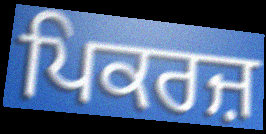
ਪਿਕਰਜ਼